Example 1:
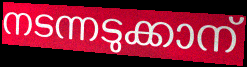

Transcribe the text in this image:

നടന്നടുക്കാന്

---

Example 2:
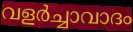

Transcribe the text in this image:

വളർച്ചാവാദം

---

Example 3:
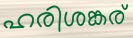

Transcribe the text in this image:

ഹരിശങ്കര്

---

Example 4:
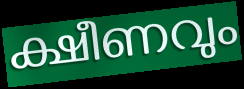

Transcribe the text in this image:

ക്ഷീണവും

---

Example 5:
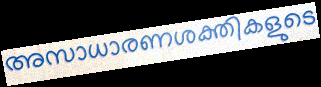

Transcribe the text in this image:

അസാധാരണശക്തികളുടെ